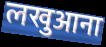
लखुआना